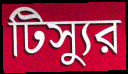
টিস্যুর